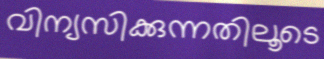
വിന്യസിക്കുന്നതിലൂടെ